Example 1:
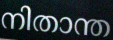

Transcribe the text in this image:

നിതാന്ത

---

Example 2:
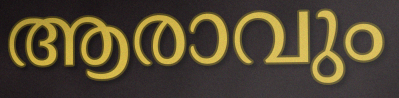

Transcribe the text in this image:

ആരാവും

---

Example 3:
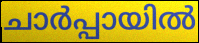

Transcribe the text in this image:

ചാർപ്പായിൽ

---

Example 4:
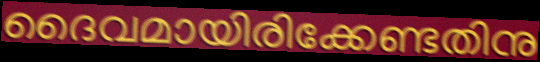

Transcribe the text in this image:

ദൈവമായിരിക്കേണ്ടതിനു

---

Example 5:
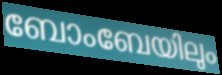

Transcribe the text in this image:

ബോംബേയിലും